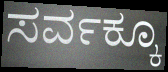
ಸರ್ವಕ್ಕೂ